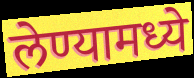
लेण्यामध्ये